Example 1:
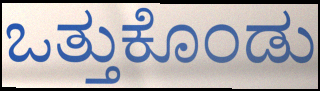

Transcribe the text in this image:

ಒತ್ತುಕೊಂಡು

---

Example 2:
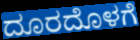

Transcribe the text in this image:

ದೂರದೊಳಗೆ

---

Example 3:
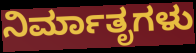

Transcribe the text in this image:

ನಿರ್ಮಾತೃಗಳು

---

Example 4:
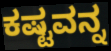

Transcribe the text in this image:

ಕಷ್ಟವನ್ನ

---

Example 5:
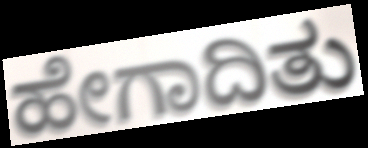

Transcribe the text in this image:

ಹೇಗಾದಿತು